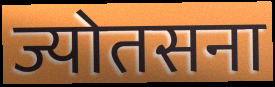
ज्योतसना